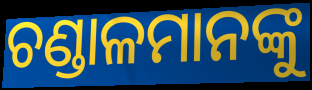
ଚଣ୍ଡାଳମାନଙ୍କୁ